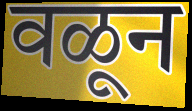
वळून